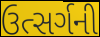
ઉત્સર્ગની